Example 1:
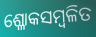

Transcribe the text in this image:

ଶ୍ଳୋକସମ୍ବଳିତ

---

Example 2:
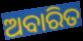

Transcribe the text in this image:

ଅବାରିତ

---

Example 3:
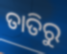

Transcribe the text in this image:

ତାତିରୁ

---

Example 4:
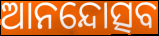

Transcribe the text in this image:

ଆନନ୍ଦୋତ୍ସବ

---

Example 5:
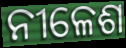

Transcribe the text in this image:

ନୀଳେଶ